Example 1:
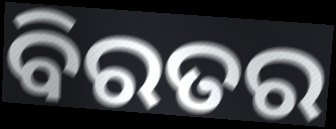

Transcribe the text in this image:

ବିରତର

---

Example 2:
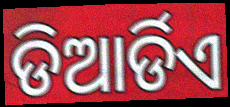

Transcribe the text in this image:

ଡିଆର୍ଡିଏ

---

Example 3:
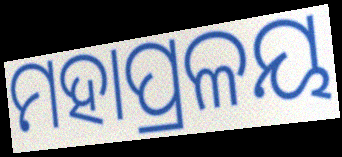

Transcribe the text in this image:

ମହାପ୍ରଳୟ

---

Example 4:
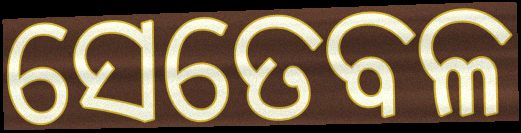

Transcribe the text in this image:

ସେତେବଳ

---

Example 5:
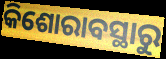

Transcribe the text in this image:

କିଶୋରାବସ୍ଥାରୁ